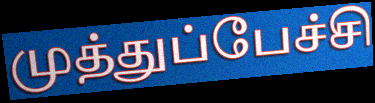
முத்துப்பேச்சி